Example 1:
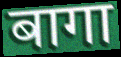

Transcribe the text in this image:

बागा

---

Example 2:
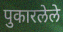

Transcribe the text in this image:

पुकारलेले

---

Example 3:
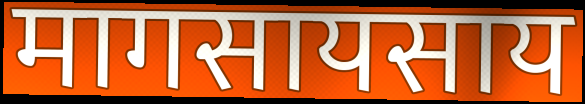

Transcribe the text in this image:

मागसायसाय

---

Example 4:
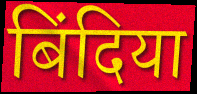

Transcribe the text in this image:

बिंदिया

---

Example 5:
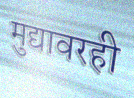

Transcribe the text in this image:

मुद्यावरही